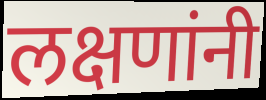
लक्षणांनी